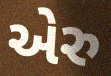
એરુ